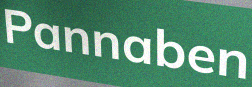
Pannaben